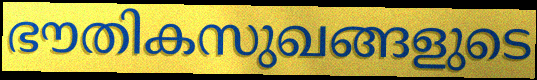
ഭൗതികസുഖങ്ങളുടെ